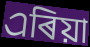
এৰিয়া